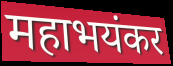
महाभयंकर